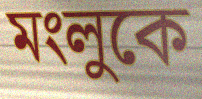
মংলুকে